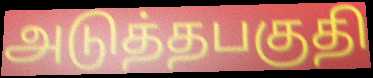
அடுத்தபகுதி